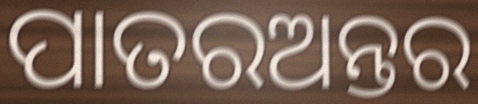
ପାତରଅନ୍ତର